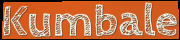
Kumbale